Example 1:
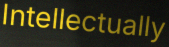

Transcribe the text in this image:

Intellectually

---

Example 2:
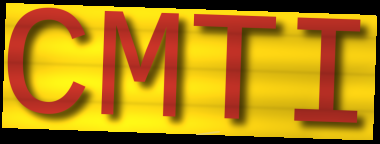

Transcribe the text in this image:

CMTI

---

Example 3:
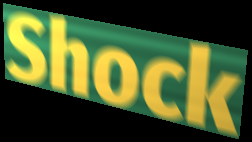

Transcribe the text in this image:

Shock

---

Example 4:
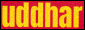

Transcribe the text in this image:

uddhar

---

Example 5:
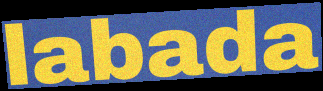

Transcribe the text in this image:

labada